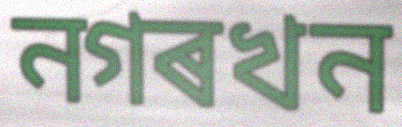
নগৰখন